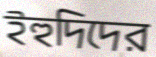
ইহুদিদের